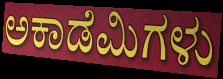
ಅಕಾಡೆಮಿಗಳು